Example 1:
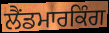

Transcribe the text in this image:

ਲੈਂਡਮਾਰਕਿੰਗ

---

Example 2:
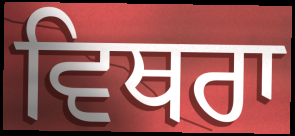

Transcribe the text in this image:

ਵਿਥਰਾ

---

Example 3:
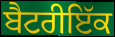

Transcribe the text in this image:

ਬੈਟਰੀਇੱਕ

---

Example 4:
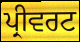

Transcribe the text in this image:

ਪ੍ਰੀਵਰਟ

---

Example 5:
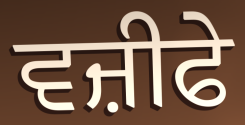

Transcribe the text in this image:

ਵਜ਼ੀਫੇ